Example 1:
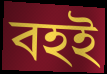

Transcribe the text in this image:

বহই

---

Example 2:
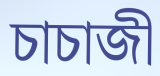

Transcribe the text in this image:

চাচাজী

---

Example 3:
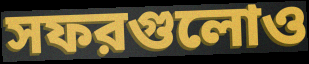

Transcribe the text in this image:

সফরগুলোও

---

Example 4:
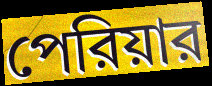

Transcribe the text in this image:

পেরিয়ার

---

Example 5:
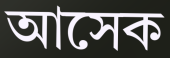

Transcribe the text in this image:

আসেক